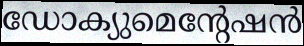
ഡോക്യുമെന്റേഷൻ